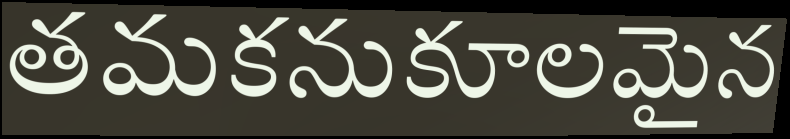
తమకనుకూలమైన